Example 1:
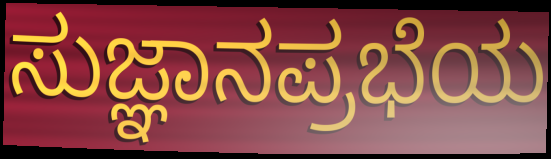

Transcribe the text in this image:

ಸುಜ್ಞಾನಪ್ರಭೆಯ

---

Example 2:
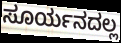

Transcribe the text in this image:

ಸೂರ್ಯನದಲ್ಲ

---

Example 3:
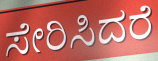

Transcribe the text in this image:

ಸೇರಿಸಿದರೆ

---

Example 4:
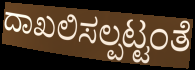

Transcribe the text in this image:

ದಾಖಲಿಸಲ್ಪಟ್ಟಂತೆ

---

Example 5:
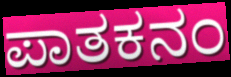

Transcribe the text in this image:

ಪಾತಕನಂ